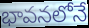
భావనలోనే